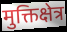
मुक्तिक्षेत्र